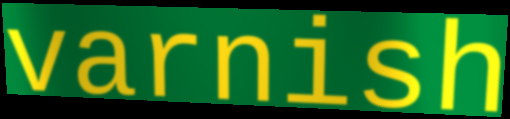
varnish